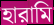
হারামি